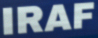
IRAF